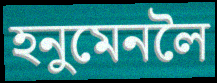
হনুমেনলৈ